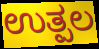
ಉತ್ಪಲ